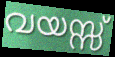
വയസ്സ്